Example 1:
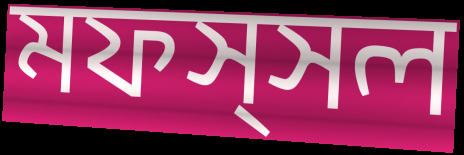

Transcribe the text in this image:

মফস্‌সল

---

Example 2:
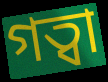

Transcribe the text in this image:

গত্বা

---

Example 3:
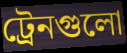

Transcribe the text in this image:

ট্রেনগুলো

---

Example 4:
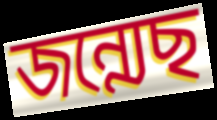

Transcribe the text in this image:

জন্মেছ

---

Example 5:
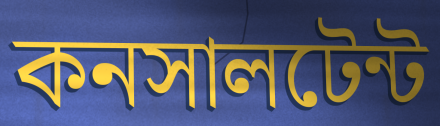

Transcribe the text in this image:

কনসালটেন্ট